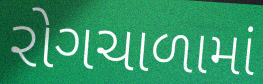
રોગચાળામાં